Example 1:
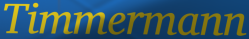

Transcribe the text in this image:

Timmermann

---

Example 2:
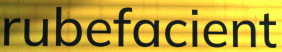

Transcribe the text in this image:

rubefacient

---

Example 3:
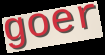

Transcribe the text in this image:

goer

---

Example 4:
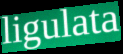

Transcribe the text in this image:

ligulata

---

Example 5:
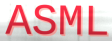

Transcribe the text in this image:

ASML